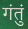
गंतुं